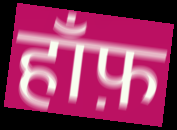
हाँफ़